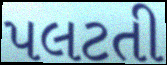
પલટતી